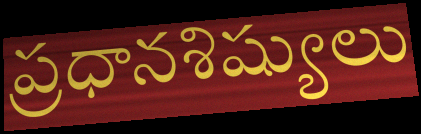
ప్రధానశిష్యులు